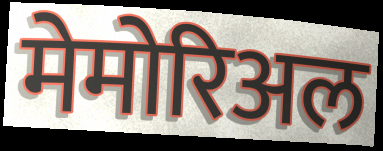
मेमोरिअल